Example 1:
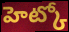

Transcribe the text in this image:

హెట్కో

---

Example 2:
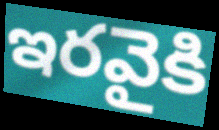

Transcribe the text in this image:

ఇరవైకి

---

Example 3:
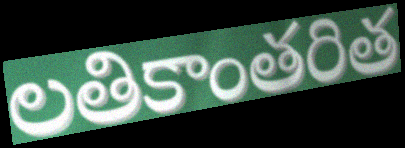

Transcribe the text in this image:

లతికాంతరిత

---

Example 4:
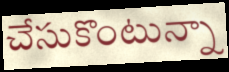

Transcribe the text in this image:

చేసుకొంటున్నా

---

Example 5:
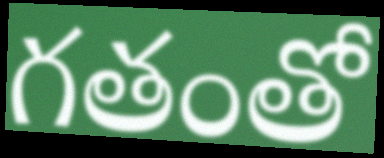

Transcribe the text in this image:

గతంతో